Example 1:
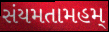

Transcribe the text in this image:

સંયમતામહમ્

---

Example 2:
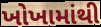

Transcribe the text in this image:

ખોખામાંથી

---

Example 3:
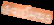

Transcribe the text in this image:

હવાઈમથક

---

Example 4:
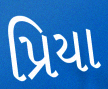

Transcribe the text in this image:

પ્રિયા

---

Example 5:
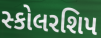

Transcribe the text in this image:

સ્કોલરશિપ